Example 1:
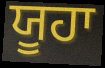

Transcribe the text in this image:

ਯੂਹਾ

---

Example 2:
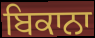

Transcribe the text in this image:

ਬਿਕਾਨਾ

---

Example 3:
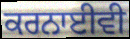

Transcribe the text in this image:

ਕਰਨਾਈਵੀ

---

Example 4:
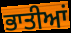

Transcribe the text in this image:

ਭਾਤੀਆਂ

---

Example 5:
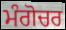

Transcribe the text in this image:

ਮੰਗੋਚਰ